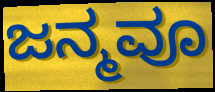
ಜನ್ಮವೂ